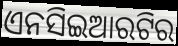
ଏନସିଇଆରଟିର